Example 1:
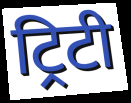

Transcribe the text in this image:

ट्रिटी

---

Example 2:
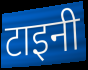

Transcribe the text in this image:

टाइनी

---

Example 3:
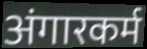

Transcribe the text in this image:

अंगारकर्म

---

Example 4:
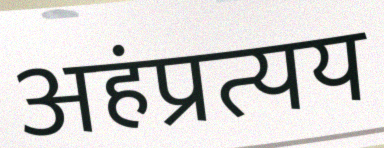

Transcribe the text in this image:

अहंप्रत्यय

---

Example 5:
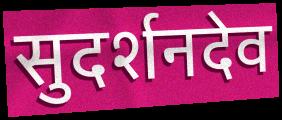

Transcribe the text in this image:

सुदर्शनदेव